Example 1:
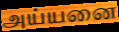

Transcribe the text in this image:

அய்யனை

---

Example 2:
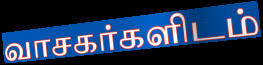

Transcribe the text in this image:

வாசகர்களிடம்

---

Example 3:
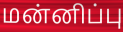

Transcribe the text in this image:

மன்னிப்பு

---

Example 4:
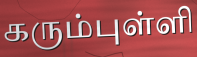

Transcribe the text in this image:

கரும்புள்ளி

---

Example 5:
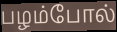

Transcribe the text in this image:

பழம்போல்